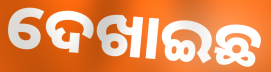
ଦେଖାଇଛ